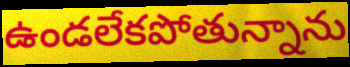
ఉండలేకపోతున్నాను